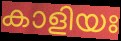
കാളിയഃ